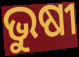
ଭୁଷୀ